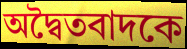
অদ্বৈতবাদকে